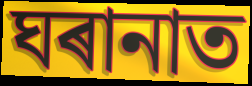
ঘৰানাত